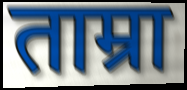
ताम्रा